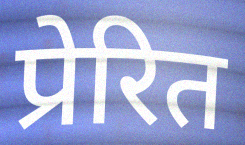
प्रेरित